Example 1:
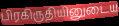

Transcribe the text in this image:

பிரகிருதியினுடைய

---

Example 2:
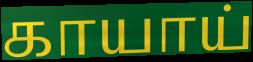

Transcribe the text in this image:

காயாய்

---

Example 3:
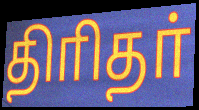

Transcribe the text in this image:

திரிதர்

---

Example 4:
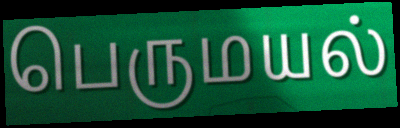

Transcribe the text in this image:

பெருமயல்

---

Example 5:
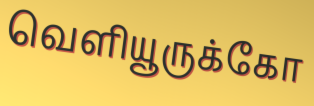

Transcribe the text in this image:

வெளியூருக்கோ